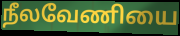
நீலவேணியை